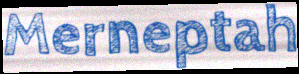
Merneptah